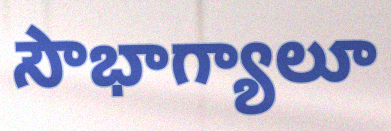
సౌభాగ్యాలూ